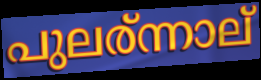
പുലര്ന്നാല്